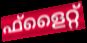
ഫ്ളൈറ്റ്